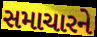
સમાચારને